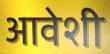
आवेशी